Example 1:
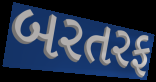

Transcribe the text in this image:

બરતરફ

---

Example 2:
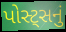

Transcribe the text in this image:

પોસ્ટ્સનું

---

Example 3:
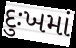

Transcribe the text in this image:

દુઃખમાં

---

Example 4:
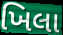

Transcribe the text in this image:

ખિલા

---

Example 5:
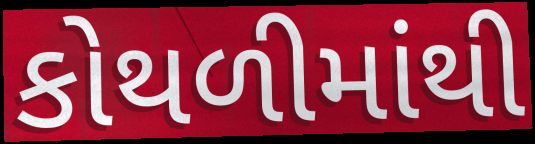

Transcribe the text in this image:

કોથળીમાંથી